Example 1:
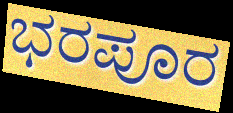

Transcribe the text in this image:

ಭರಪೂರ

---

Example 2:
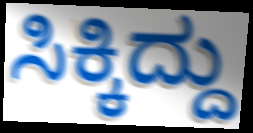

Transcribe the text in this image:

ಸಿಕ್ಕಿದ್ದು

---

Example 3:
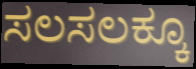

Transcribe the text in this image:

ಸಲಸಲಕ್ಕೂ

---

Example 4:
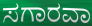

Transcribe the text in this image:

ಸಗಾರವಾ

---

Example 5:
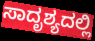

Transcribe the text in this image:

ಸಾದೃಶ್ಯದಲ್ಲಿ